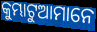
କୁମ୍ଭାଟୁଆମାନେ